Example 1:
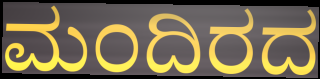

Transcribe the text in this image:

ಮಂದಿರದ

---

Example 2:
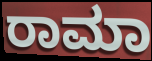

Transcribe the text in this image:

ರಾಮಾ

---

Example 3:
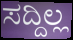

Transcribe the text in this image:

ಸದ್ದಿಲ್ಲ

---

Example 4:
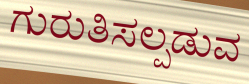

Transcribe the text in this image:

ಗುರುತಿಸಲ್ಪಡುವ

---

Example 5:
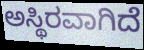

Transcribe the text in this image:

ಅಸ್ಥಿರವಾಗಿದೆ